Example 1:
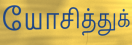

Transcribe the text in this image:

யோசித்துக்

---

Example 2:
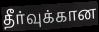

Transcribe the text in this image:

தீர்வுக்கான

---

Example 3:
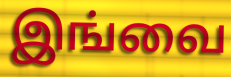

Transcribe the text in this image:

இங்வை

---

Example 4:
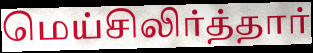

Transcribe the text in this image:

மெய்சிலிர்த்தார்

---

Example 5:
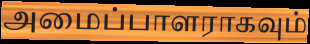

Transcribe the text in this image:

அமைப்பாளராகவும்